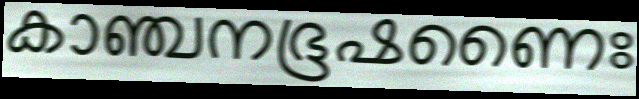
കാഞ്ചനഭൂഷണൈഃ